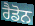
ਰੈਡੋਨ